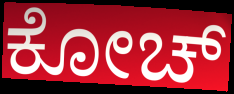
ಕೋಚ್